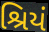
શ્રિયં